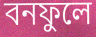
বনফুলে